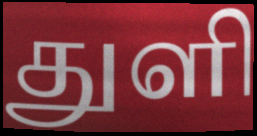
துளி